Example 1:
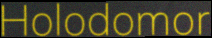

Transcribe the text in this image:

Holodomor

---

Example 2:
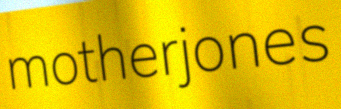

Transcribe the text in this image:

motherjones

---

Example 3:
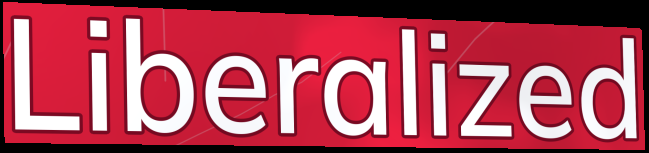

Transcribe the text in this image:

Liberalized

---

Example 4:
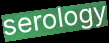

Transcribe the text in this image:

serology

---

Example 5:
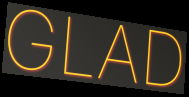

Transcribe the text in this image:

GLAD